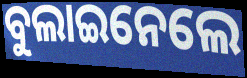
ବୁଲାଇନେଲେ